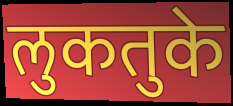
लुकतुके